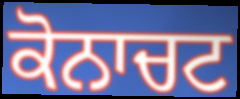
ਕੋਨਾਚਟ